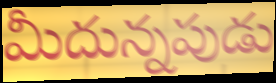
మీదున్నపుడు